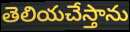
తెలియచేస్తాను